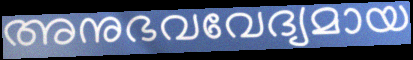
അനുഭവവേദ്യമായ